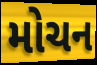
મોચન